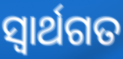
ସ୍ୱାର୍ଥଗତ